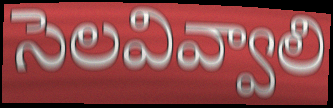
సెలవివ్వాలి